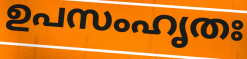
ഉപസംഹൃതഃ